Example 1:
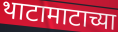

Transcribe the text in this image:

थाटामाटाच्या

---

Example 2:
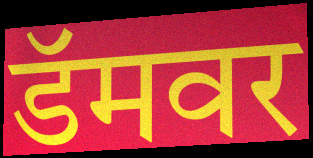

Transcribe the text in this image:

डॅमवर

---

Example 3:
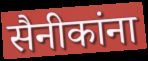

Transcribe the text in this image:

सैनीकांना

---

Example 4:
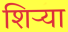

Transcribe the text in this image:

शिर्‍या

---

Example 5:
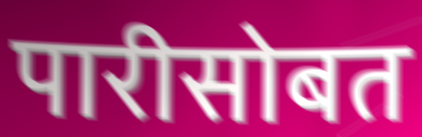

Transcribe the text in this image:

पारीसोबत